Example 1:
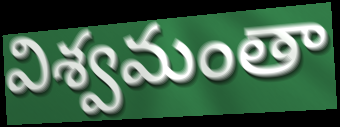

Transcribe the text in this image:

విశ్వమంతా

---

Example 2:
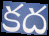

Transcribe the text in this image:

కద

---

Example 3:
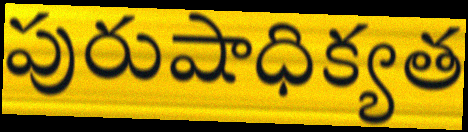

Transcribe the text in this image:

పురుషాధిక్యత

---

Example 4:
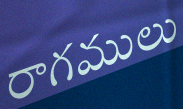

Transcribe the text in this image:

రాగములు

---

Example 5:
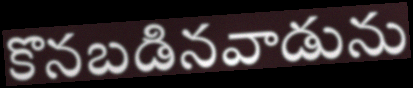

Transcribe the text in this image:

కొనబడినవాడును